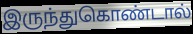
இருந்துகொண்டால்